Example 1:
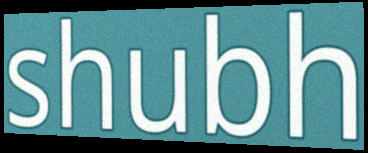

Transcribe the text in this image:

shubh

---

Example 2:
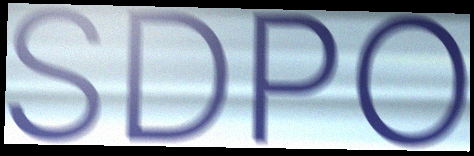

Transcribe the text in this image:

SDPO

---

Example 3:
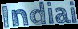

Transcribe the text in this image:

Indiai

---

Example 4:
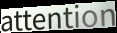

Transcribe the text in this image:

attention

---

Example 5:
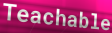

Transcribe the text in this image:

Teachable